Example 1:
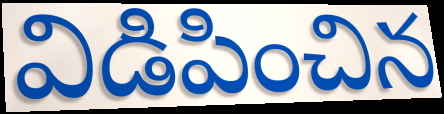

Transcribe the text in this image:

విడిపించిన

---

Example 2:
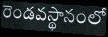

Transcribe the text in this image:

రెండవస్థానంలో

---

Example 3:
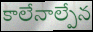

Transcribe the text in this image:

కాలేనాల్పేన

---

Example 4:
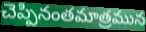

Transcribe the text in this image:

చెప్పినంతమాత్రమున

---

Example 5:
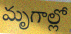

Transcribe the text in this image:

మృగాల్లో